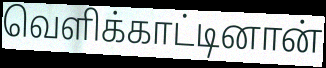
வெளிக்காட்டினான்